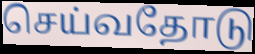
செய்வதோடு